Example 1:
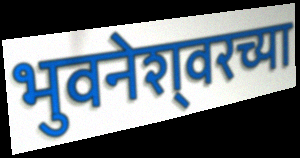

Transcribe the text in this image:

भुवनेश्वरच्या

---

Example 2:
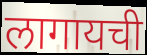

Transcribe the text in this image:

लागायची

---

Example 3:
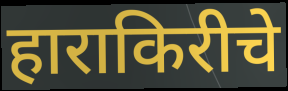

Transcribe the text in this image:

हाराकिरीचे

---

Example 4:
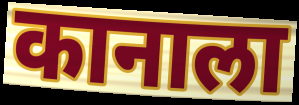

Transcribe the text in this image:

कानाला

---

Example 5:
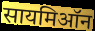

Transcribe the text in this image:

सायमिऑन